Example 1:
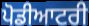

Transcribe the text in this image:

ਪੋਡੀਆਟਰੀ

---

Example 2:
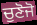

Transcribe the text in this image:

ਚੁਣੋਜੋ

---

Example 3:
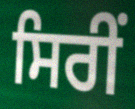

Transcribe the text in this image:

ਸਿਰੀਂ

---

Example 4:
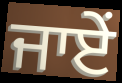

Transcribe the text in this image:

ਜਾਏਂ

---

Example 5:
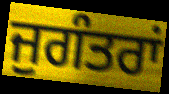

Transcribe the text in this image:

ਜੁਗੰਤਰਾਂ